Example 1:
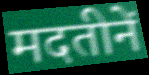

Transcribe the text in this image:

मदतीनें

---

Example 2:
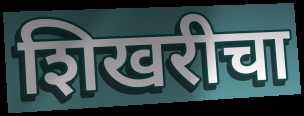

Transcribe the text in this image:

शिखरीचा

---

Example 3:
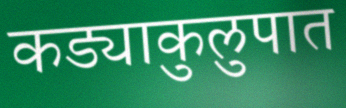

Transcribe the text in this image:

कड्याकुलुपात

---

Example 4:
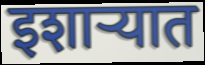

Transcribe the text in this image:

इशाऱ्यात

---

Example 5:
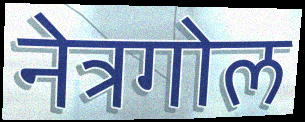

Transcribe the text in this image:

नेत्रगोल